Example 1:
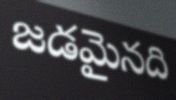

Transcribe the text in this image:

జడమైనది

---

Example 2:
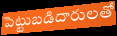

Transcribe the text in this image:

పెట్టుబడిదారులతో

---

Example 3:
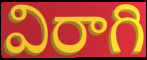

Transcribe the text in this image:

విరాగి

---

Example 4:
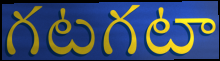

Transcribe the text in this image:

గటగటా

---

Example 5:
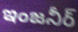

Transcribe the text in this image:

ఇంజనీర్